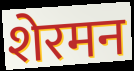
शेरमन